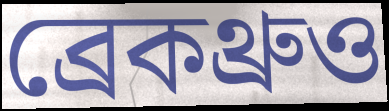
ব্রেকথ্রুও